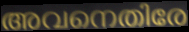
അവനെതിരേ